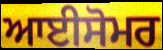
ਆਈਸੋਮਰ